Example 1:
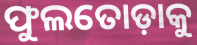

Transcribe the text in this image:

ଫୁଲତୋଡ଼ାକୁ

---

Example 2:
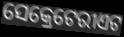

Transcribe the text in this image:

ସେକ୍ରେଟେରୀଏଟ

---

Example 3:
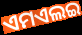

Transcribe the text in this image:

ଏମଏଲଇ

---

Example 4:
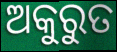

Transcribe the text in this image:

ଅକୁରୁତ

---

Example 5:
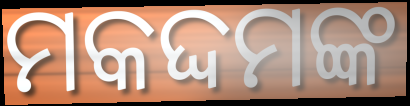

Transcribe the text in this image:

ମକଦ୍ଦମଙ୍କ